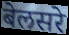
बेलसरे